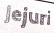
Jejuri